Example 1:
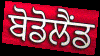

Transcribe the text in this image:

ਬੋਡੋਲੈਂਡ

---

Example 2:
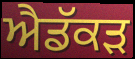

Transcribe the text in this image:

ਐਡੱਕੜ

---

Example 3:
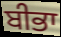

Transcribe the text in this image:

ਬੀਭਾ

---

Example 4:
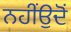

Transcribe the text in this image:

ਨਹੀਂਉਦੋਂ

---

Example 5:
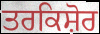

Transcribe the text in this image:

ਤਰਕਿਸ਼ੋਰ